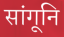
सांगूनि